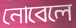
নোবেলে